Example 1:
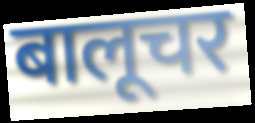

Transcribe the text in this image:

बालूचर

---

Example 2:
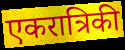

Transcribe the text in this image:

एकरात्रिकी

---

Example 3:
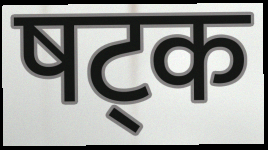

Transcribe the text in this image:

षट्क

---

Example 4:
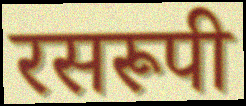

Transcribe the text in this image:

रसरूपी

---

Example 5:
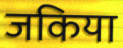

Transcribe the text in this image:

जकिया